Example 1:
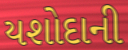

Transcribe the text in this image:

યશોદાની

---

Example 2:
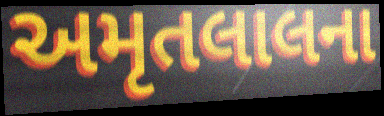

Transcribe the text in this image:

અમૃતલાલના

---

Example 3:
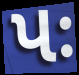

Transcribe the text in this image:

પઃ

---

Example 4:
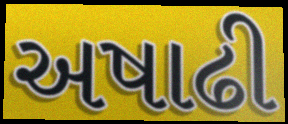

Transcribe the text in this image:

અષાઢી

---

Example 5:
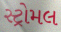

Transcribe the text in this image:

સ્ટ્રોમલ